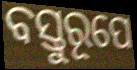
ବସ୍ତୁରୂପେ